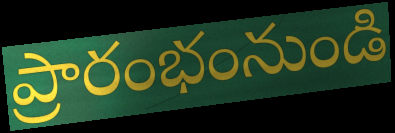
ప్రారంభంనుండి